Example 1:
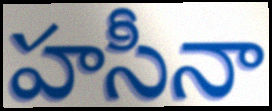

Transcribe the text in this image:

హసీనా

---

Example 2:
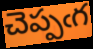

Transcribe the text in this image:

చెప్పఁగ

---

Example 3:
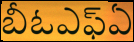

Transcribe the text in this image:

బీఓఎఫ్ఏ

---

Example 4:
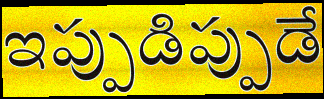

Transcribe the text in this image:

ఇప్పుడిప్పుడే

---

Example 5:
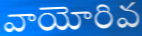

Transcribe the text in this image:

వాయోరివ